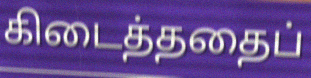
கிடைத்ததைப்